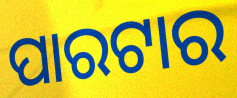
ପାରଟାର